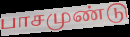
பாசமுண்டு